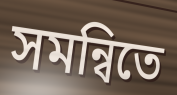
সমন্বিতে